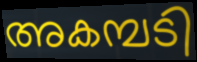
അകമ്പടി